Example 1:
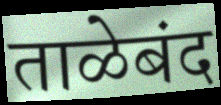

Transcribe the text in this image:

ताळेबंद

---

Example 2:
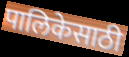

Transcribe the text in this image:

पालिकेसाठी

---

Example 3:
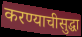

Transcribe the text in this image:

करण्याचीसुद्धा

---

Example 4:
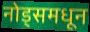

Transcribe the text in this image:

नोड्समधून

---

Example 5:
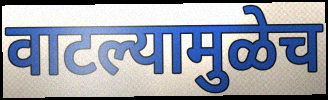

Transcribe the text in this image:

वाटल्यामुळेच